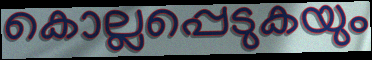
കൊല്ലപ്പെടുകയും